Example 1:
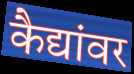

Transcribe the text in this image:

कैद्यांवर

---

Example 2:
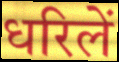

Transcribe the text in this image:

धरिलें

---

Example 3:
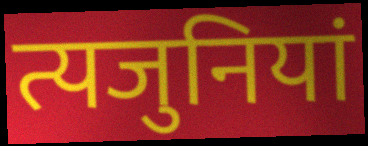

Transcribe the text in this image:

त्यजुनियां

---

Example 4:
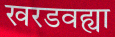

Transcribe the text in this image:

खरडवह्या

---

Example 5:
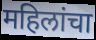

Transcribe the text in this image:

महिलांचा